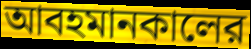
আবহমানকালের